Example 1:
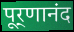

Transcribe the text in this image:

पूर्णानंद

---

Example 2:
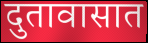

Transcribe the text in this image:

दुतावासात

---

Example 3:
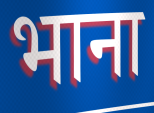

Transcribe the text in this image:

भाना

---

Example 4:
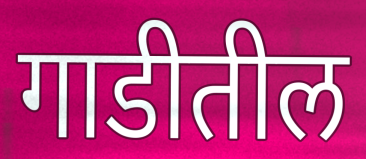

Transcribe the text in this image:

गाडीतील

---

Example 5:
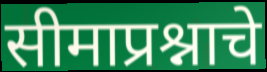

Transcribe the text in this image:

सीमाप्रश्नाचे